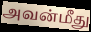
அவன்மீது